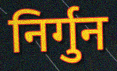
निर्गुन